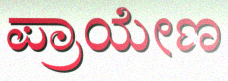
ಪ್ರಾಯೇಣ